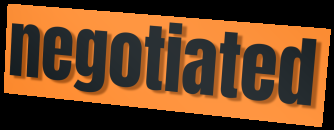
negotiated